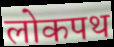
लोकपथ